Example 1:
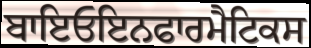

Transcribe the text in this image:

ਬਾਇਓਇਨਫਾਰਮੈਟਿਕਸ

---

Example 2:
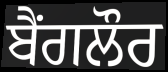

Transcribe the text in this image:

ਬੈੰਗਲੌਰ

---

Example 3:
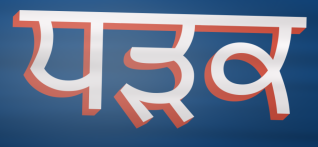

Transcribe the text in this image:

ਧਡ਼ਕ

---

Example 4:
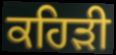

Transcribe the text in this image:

ਕਹਿੜੀ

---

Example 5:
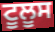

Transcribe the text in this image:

ਟੂਲੂਸ